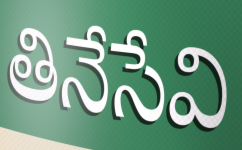
తినేసేవి